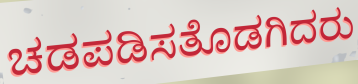
ಚಡಪಡಿಸತೊಡಗಿದರು